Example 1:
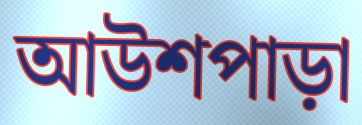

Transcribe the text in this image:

আউশপাড়া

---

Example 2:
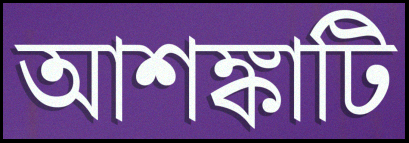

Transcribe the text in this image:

আশঙ্কাটি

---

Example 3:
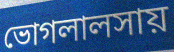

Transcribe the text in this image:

ভোগলালসায়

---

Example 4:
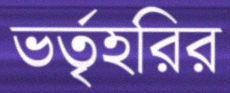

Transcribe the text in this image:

ভর্তৃহরির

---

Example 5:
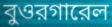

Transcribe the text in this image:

বুওরগারেল